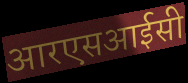
आरएसआईसी